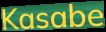
Kasabe